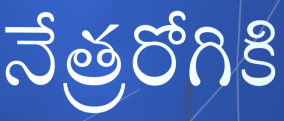
నేత్రరోగికి